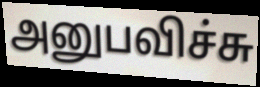
அனுபவிச்சு